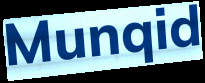
Munqid